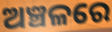
ଅଞ୍ଚଳରେ